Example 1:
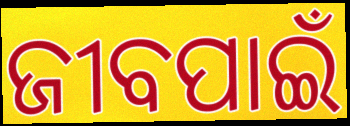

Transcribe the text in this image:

ଜୀବପାଇଁ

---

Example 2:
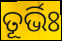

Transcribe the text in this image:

ତୂର୍ଭିଃ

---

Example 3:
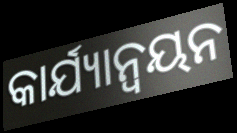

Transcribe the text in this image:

କାର୍ଯ୍ୟାନ୍ବୟନ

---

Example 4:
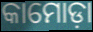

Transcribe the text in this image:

କାମୋଡ଼ା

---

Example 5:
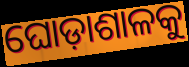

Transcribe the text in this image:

ଘୋଡ଼ାଶାଳକୁ